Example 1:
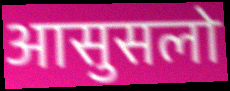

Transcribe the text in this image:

आसुसलो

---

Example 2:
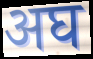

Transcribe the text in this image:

अघ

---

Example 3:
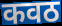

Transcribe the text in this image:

कवठ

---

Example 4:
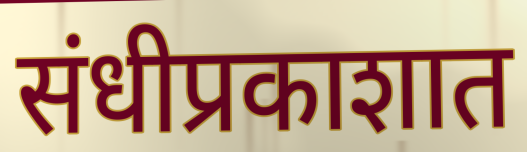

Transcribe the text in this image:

संधीप्रकाशात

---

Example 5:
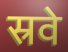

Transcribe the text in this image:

स्रवे